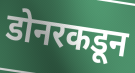
डोनरकडून